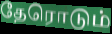
தேரொடும்